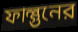
ফাল্গুনের